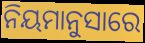
ନିୟମାନୁସାରେ